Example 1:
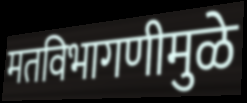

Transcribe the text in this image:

मतविभागणीमुळे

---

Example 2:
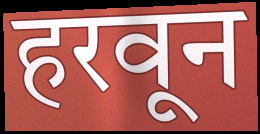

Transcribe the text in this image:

हरवून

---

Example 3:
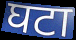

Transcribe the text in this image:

घटा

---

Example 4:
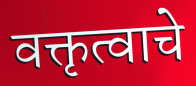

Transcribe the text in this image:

वक्तृत्वाचे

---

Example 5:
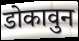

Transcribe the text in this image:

डोकावुन